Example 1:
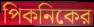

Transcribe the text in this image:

পিকনিকের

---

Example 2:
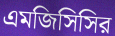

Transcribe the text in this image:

এমজিসিসির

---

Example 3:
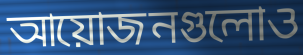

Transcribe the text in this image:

আয়োজনগুলোও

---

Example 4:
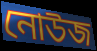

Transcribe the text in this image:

নোউজ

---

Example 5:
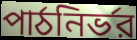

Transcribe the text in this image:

পাঠনির্ভর